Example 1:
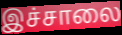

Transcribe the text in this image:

இச்சாலை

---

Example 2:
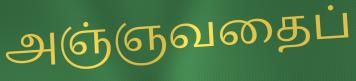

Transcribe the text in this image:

அஞ்ஞவதைப்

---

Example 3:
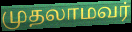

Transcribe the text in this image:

முதலாமவர்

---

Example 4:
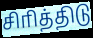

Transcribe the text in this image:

சிரித்திடு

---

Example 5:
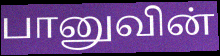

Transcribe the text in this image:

பானுவின்